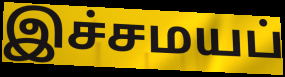
இச்சமயப்